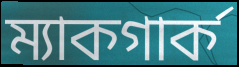
ম্যাকগার্ক